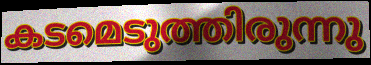
കടമെടുത്തിരുന്നു